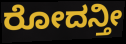
ರೋದನ್ತೀ